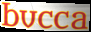
bucca